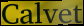
Calvet